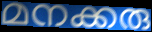
മനക്കരു